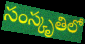
సంస్కృతిలో